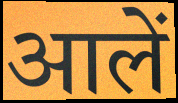
आलें